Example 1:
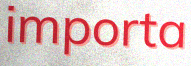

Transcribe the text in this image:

importa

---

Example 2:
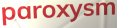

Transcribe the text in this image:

paroxysm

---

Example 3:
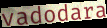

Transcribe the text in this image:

vadodara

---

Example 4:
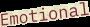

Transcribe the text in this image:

Emotional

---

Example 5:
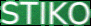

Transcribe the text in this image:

STIKO